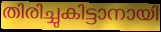
തിരിച്ചുകിട്ടാനായി